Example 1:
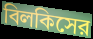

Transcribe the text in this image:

বিলকিসের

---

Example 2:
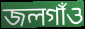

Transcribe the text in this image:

জলগাঁও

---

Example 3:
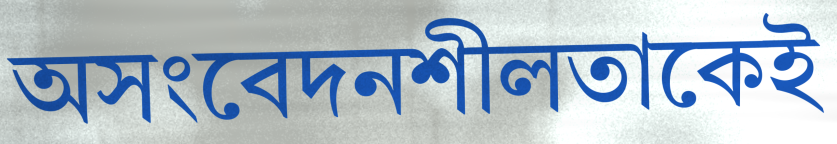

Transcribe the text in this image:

অসংবেদনশীলতাকেই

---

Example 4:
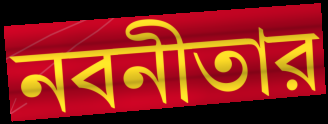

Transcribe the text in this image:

নবনীতার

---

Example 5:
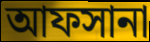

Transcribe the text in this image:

আফসানা